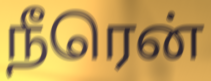
நீரென்